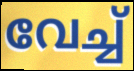
വേച്ച്